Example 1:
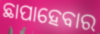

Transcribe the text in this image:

ଛାପାହେବାର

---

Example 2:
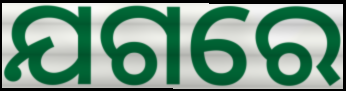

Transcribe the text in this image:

ଯଗରେ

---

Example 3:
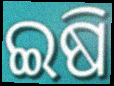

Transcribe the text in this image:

ଇଷି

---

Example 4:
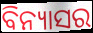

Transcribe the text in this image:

ବିନ୍ୟାସର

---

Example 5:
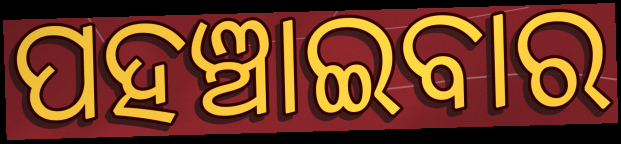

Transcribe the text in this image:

ପହଞ୍ଚାଇବାର